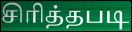
சிரித்தபடி